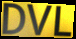
DVL